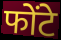
फोंटे